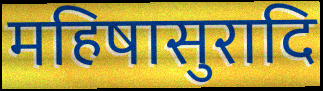
महिषासुरादि